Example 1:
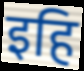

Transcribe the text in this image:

इहि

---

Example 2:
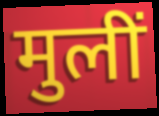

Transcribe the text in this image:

मुलीं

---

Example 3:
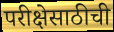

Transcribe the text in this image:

परीक्षेसाठीची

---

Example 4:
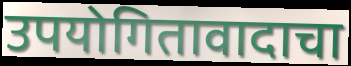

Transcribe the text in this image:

उपयोगितावादाचा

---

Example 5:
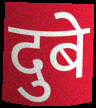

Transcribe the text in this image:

दुबे